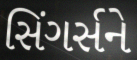
સિંગર્સને